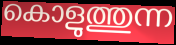
കൊളുത്തുന്ന